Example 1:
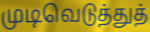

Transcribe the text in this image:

முடிவெடுத்துத்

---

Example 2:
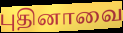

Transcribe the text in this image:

புதினாவை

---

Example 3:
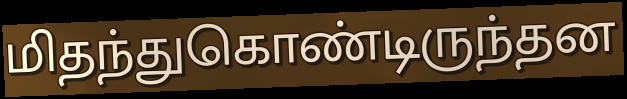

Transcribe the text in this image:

மிதந்துகொண்டிருந்தன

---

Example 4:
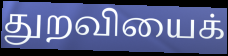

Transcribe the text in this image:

துறவியைக்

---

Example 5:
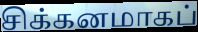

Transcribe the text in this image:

சிக்கனமாகப்